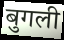
बुगली